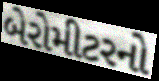
બેરોમીટરનો